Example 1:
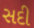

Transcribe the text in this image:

સદી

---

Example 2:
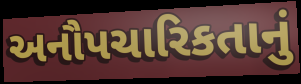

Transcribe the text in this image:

અનૌપચારિકતાનું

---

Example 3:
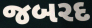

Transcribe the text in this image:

જબરદ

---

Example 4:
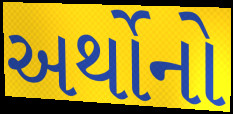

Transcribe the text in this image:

અર્થોનો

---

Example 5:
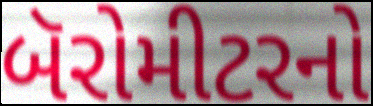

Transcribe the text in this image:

બૅરોમીટરનો